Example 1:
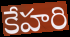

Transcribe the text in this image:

కేహరి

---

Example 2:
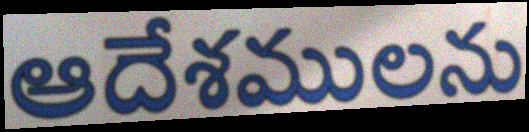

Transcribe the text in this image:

ఆదేశములను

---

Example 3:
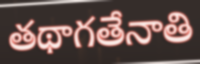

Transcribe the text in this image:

తథాగతేనాతి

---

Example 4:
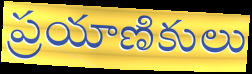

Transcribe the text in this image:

ప్రయాణికులు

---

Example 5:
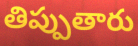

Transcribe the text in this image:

తిప్పుతారు